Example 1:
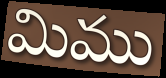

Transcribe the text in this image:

మిము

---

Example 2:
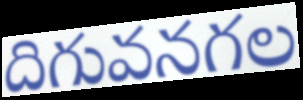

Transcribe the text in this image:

దిగువనగల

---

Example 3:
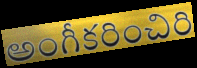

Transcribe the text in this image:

అంగీకరించిరి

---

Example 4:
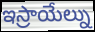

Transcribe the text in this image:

ఇస్రాయేల్ను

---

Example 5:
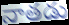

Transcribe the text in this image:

నాతడు